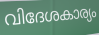
വിദേശകാര്യം